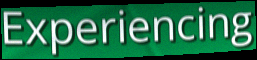
Experiencing